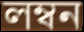
লম্বন